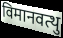
विमानवत्थु